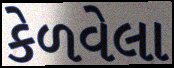
કેળવેલા